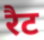
रैट